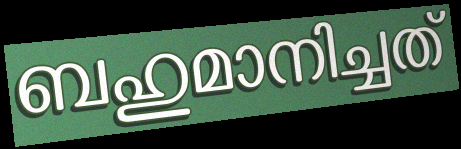
ബഹുമാനിച്ചത്